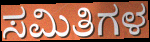
ಸಮಿತಿಗಳ